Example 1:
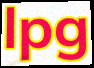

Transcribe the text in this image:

lpg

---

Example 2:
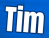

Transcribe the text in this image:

Tim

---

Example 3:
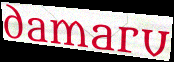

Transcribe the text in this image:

damaru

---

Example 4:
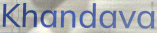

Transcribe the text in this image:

Khandava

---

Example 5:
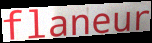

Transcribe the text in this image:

flaneur